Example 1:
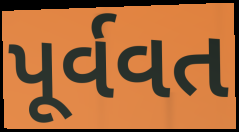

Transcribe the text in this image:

પૂર્વવત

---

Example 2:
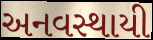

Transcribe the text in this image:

અનવસ્થાયી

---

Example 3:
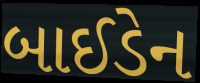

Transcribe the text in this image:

બાઈડેન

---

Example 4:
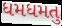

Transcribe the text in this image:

ધમધમતુ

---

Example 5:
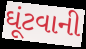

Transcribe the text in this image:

ઘૂંટવાની